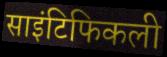
साइंटिफिकली